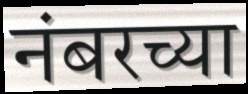
नंबरच्या